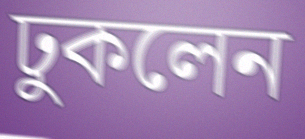
ঢুকলেন